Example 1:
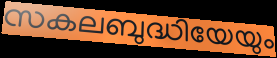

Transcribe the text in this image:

സകലബുദ്ധിയേയും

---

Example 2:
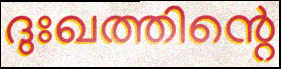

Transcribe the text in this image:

ദുഃഖത്തിന്റെ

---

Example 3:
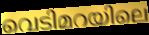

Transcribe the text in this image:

വെടിമറയിലെ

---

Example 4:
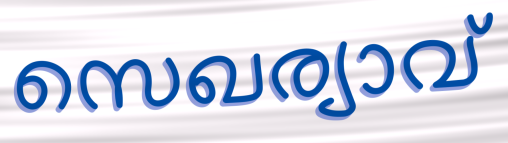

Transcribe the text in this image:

സെഖര്യാവ്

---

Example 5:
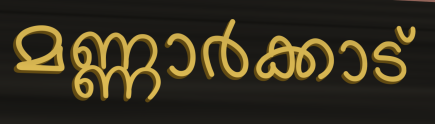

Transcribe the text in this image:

മണ്ണാർക്കാട്